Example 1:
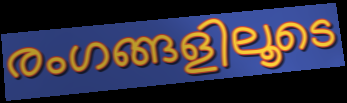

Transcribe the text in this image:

രംഗങ്ങളിലൂടെ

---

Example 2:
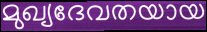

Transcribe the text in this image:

മുഖ്യദേവതയായ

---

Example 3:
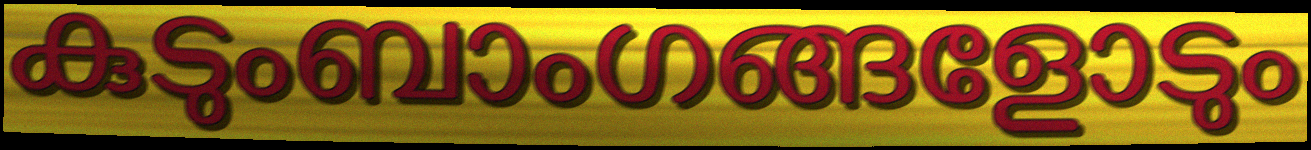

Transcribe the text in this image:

കുടുംബാംഗങ്ങളോടും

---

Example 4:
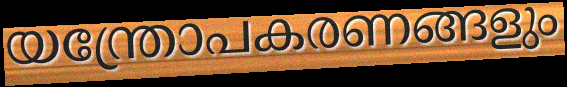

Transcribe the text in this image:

യന്ത്രോപകരണങ്ങളും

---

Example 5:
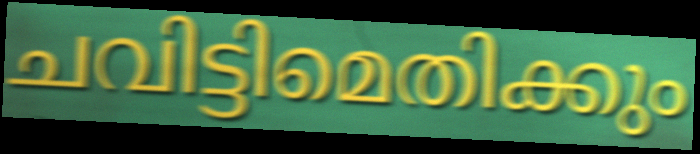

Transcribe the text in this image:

ചവിട്ടിമെതിക്കും